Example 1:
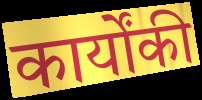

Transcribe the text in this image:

कार्योंकी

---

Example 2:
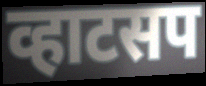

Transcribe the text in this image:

व्हाटसप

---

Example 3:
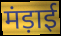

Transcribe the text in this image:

मंड़ाई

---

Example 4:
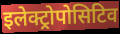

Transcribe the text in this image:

इलेक्ट्रोपोसिटिव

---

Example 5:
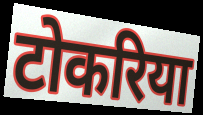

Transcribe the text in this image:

टोकरिया